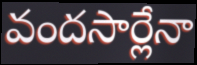
వందసార్లేనా